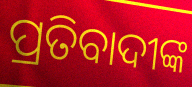
ପ୍ରତିବାଦୀଙ୍କ